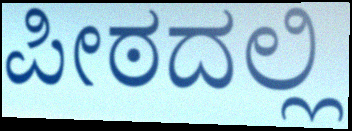
ಪೀಠದಲ್ಲಿ